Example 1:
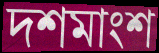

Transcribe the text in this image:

দশমাংশ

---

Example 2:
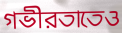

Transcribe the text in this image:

গভীরতাতেও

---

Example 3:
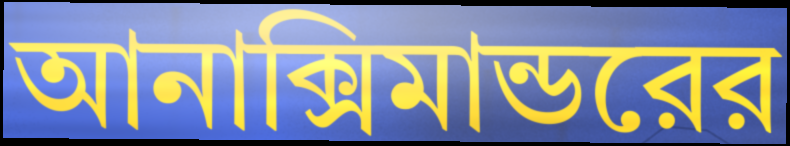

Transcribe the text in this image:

আনাক্সিমান্ডরের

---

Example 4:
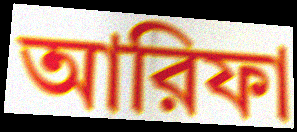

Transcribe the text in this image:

আরিফা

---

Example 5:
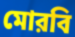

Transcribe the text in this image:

মোরবি